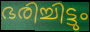
ഭരിച്ചിട്ടും